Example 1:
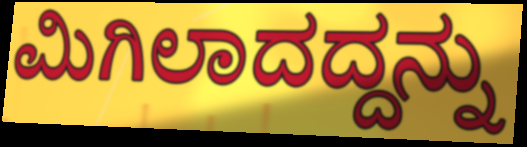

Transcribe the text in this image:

ಮಿಗಿಲಾದದ್ದನ್ನು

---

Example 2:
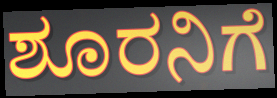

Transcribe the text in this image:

ಶೂರನಿಗೆ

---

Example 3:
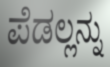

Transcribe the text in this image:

ಪೆಡಲ್ಲನ್ನು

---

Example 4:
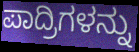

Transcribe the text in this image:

ಪಾದ್ರಿಗಳನ್ನು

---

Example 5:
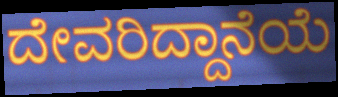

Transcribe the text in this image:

ದೇವರಿದ್ದಾನೆಯೆ